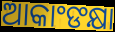
ଆକାଂଙକ୍ଷା